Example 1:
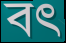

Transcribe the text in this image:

বৎ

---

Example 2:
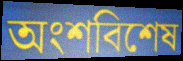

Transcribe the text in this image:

অংশবিশেষ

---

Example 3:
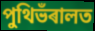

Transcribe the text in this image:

পুথিভঁৰালত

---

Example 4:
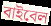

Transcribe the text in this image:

বাইবেল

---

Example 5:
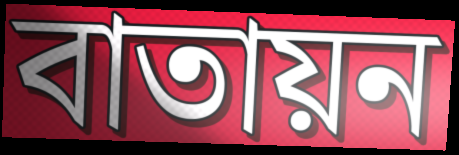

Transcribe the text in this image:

বাতায়ন